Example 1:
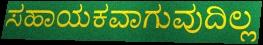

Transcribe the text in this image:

ಸಹಾಯಕವಾಗುವುದಿಲ್ಲ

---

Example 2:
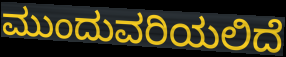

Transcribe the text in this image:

ಮುಂದುವರಿಯಲಿದೆ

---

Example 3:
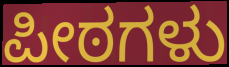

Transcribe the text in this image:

ಪೀಠಗಳು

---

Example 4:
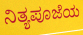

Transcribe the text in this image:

ನಿತ್ಯಪೂಜೆಯ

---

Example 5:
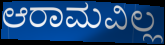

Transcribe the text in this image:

ಆರಾಮವಿಲ್ಲ